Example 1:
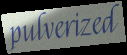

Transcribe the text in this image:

pulverized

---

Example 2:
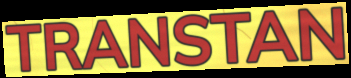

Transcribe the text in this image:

TRANSTAN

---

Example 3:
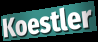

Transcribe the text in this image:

Koestler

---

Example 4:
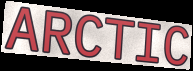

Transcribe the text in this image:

ARCTIC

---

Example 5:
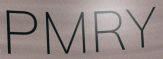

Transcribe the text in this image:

PMRY